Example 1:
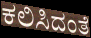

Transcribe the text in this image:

ಕಲಿಸಿದಂತೆ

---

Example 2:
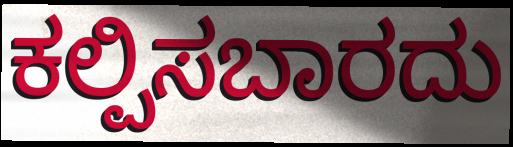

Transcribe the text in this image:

ಕಲ್ಪಿಸಬಾರದು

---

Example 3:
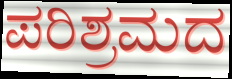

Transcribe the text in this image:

ಪರಿಶ್ರಮದ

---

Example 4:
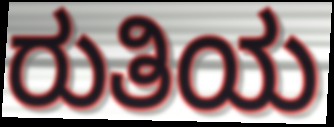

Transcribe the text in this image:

ರುತಿಯ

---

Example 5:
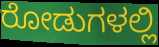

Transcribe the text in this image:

ರೋಡುಗಳಲ್ಲಿ